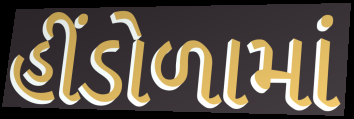
હીંડોળામાં